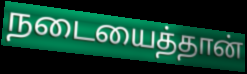
நடையைத்தான்